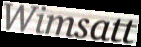
Wimsatt